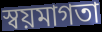
স্বয়মাগতা